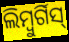
ଲିମ୍ବୁର୍ଗିସ୍